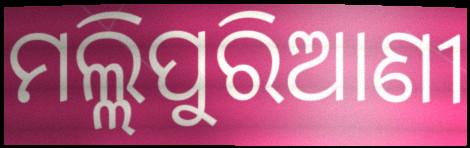
ମଲ୍ଲିପୁରିଆଣୀ